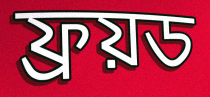
ফ্ৰয়ড